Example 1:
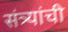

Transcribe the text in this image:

संत्र्यांची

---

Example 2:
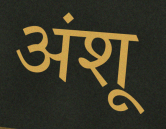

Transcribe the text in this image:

अंशू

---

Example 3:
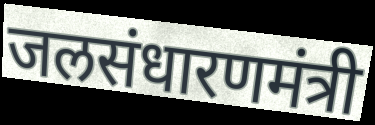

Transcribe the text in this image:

जलसंधारणमंत्री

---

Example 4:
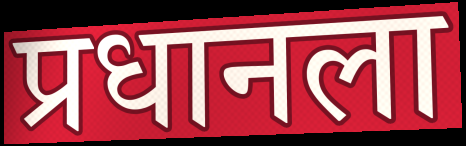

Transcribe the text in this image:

प्रधानला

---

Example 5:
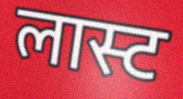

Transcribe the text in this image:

लास्ट